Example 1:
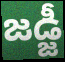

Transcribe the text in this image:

జడ్జీ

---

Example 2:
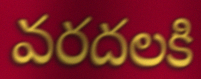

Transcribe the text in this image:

వరదలకి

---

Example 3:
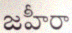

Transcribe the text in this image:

జహీరా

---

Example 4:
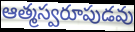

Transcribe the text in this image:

ఆత్మస్వరూపుడవు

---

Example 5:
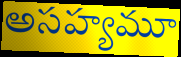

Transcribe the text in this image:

అసహ్యమూ